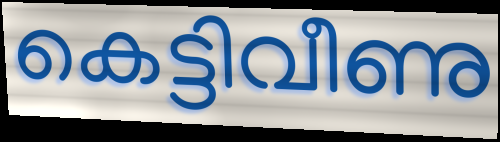
കെട്ടിവീണു